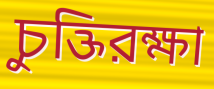
চুক্তিরক্ষা